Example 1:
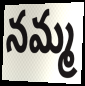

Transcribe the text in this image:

నమ్మ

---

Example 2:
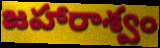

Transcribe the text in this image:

జహారాశ్వం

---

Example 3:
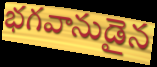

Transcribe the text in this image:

భగవానుడైన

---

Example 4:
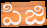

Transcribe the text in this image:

పిజి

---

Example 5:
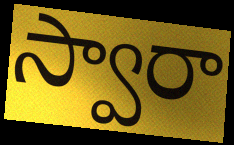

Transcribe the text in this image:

స్వారా